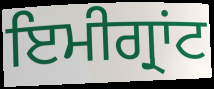
ਇਮੀਗ੍ਰਾਂਟ